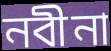
নবীনা